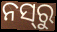
ନସ୍‍ରୁ